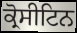
ਕ੍ਰੋਸੀਟਿਨ